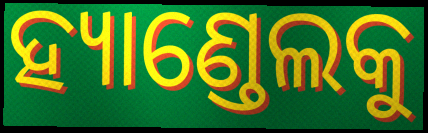
ହ୍ୟାଣ୍ଡେଲକୁ